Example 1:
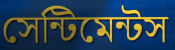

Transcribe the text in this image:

সেন্টিমেন্টস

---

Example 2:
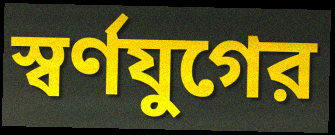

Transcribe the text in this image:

স্বর্ণযুগের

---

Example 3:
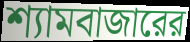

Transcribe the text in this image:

শ্যামবাজারের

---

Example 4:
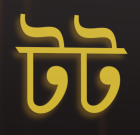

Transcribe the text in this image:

টট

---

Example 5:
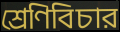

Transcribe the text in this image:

শ্রেণিবিচার